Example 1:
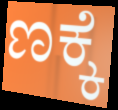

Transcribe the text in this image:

ಣಕ್ಕೆ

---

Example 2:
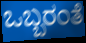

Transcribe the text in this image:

ಒಬ್ಬರಂತೆ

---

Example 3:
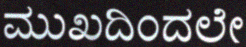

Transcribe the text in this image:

ಮುಖದಿಂದಲೇ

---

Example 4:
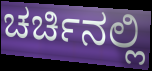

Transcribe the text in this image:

ಚರ್ಚಿನಲ್ಲಿ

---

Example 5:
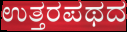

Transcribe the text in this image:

ಉತ್ತರಪಥದ